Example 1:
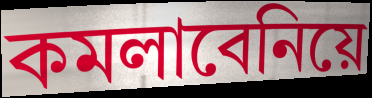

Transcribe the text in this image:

কমলাবেনিয়ে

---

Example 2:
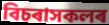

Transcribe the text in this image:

বিচৰাসকলৰ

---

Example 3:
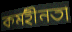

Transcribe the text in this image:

কৰ্মহীনতা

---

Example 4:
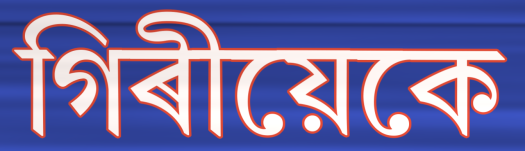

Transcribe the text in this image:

গিৰীয়েকে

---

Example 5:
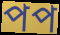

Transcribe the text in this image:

পপ